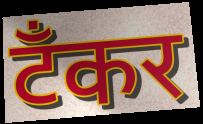
टँकर